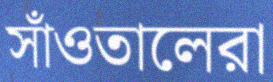
সাঁওতালেরা